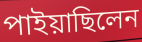
পাইয়াছিলেন